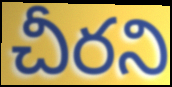
చీరని